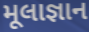
મૂલાજ્ઞાન